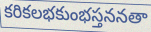
కరికలభకుంభస్తననతా